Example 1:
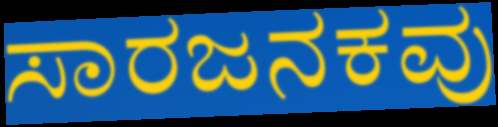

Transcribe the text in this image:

ಸಾರಜನಕವು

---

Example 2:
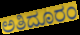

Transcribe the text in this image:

ಅತಿದೂರಂ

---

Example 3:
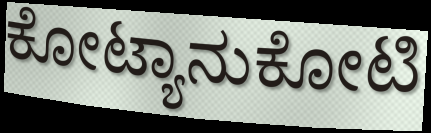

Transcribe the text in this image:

ಕೋಟ್ಯಾನುಕೋಟಿ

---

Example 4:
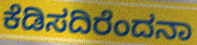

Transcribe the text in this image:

ಕೆಡಿಸದಿರೆಂದನಾ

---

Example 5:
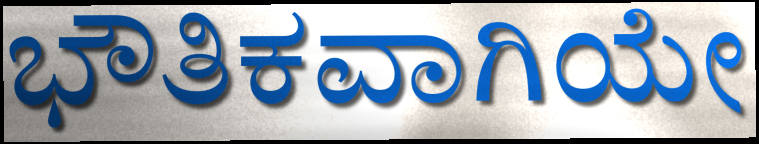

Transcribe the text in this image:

ಭೌತಿಕವಾಗಿಯೇ